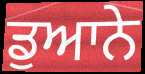
ਡੁਆਨੇ